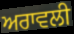
ਅਰਾਵਲੀ